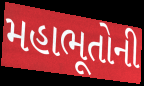
મહાભૂતોની